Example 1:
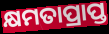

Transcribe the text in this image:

କ୍ଷମତାପ୍ରାପ୍ତ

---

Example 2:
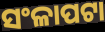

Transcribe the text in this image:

ସଂଳାପଟା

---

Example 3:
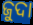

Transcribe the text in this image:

ଜୁଦା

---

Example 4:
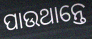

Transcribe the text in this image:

ପାଉଥାନ୍ତେ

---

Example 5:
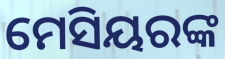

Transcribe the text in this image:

ମେସିୟରଙ୍କ